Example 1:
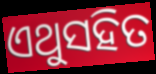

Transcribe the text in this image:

ଏଥୁସହିତ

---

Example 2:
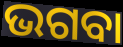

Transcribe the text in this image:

ଭଗବା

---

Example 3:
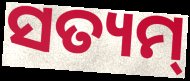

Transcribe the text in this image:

ସତ୍ୟମ୍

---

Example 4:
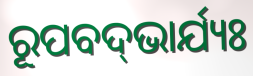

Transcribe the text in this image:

ରୂପବଦ୍‌ଭାର୍ଯ୍ୟଃ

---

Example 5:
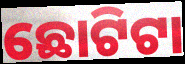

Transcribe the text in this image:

ଛୋଟିଟା